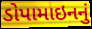
ડોપામાઇનનું